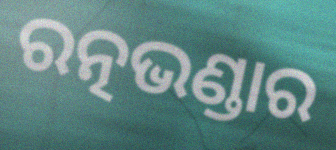
ରତ୍ନଭଣ୍ଡାର